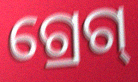
ଗ୍ରେଗ୍